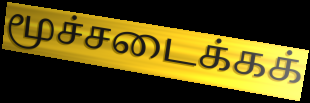
மூச்சடைக்கக்